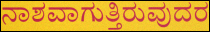
ನಾಶವಾಗುತ್ತಿರುವುದರ